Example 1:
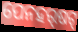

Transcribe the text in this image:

ପେନହର୍‍ଷଟ୍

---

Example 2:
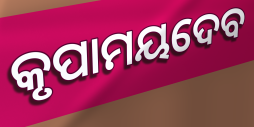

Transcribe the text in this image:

କୃପାମୟଦେବ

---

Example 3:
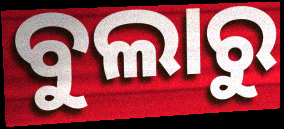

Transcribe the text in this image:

ବୁଲାରୁ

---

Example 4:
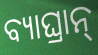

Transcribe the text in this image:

ବ୍ୟାଘ୍ରାନ୍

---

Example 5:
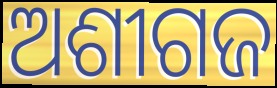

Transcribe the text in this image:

ଅଶୀଗଜ